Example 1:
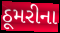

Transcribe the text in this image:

ઠૂમરીના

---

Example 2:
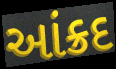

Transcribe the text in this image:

આંક્રદ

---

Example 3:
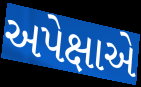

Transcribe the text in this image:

અપેક્ષાએ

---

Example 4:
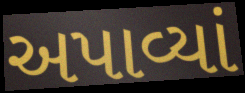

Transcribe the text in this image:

અપાવ્યાં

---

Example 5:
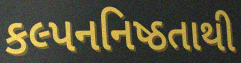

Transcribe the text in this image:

કલ્પનનિષ્ઠતાથી